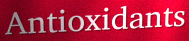
Antioxidants